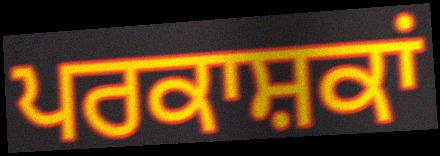
ਪਰਕਾਸ਼ਕਾਂ